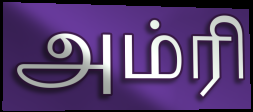
அம்ரி